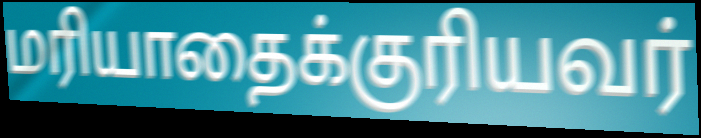
மரியாதைக்குரியவர்